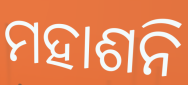
ମହାଶନି